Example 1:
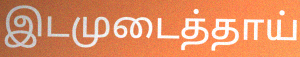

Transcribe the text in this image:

இடமுடைத்தாய்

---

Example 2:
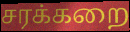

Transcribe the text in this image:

சரக்கறை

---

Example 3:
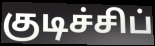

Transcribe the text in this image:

குடிச்சிப்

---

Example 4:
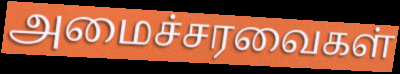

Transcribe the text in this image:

அமைச்சரவைகள்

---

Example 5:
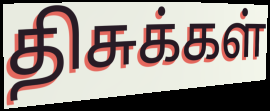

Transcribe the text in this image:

திசுக்கள்